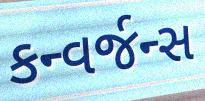
કન્વર્જન્સ